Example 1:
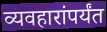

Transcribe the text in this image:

व्यवहारांपर्यंत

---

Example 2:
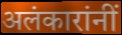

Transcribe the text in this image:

अलंकारांनीं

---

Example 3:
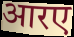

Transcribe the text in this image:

आरए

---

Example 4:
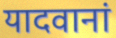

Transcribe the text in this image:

यादवानां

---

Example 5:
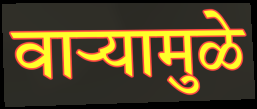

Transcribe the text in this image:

वाऱ्यामुळे